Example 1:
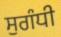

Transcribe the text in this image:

ਸੁਗੰਧੀ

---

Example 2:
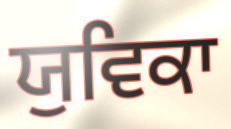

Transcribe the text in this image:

ਯੁਵਿਕਾ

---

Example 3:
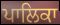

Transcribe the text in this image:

ਪਾਲਿਕਾ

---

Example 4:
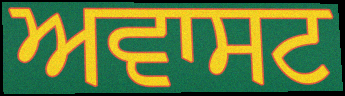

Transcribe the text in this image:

ਅਵਾਸਟ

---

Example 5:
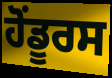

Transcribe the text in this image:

ਹੋਂਡੂਰਸ